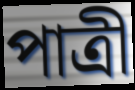
পাত্রী